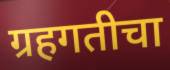
ग्रहगतीचा